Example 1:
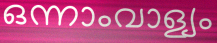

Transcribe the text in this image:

ഒന്നാംവാള്യം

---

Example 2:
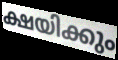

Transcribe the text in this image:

ക്ഷയിക്കും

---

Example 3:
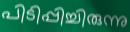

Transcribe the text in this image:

പിടിപ്പിച്ചിരുന്നു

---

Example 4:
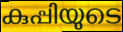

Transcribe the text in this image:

കുപ്പിയുടെ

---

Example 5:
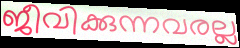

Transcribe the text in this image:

ജീവിക്കുന്നവരല്ല